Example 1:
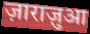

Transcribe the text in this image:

ज़ाराज़ुआ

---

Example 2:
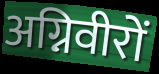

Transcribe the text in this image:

अग्निवीरों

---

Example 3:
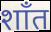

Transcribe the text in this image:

शाँत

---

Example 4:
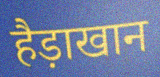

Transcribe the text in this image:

हैड़ाखान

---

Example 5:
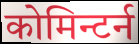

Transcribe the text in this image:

कोमिन्टर्न